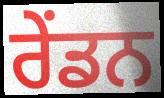
ਰੇਂਡਨ